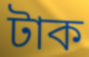
টাক